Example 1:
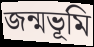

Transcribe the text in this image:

জন্মভূমি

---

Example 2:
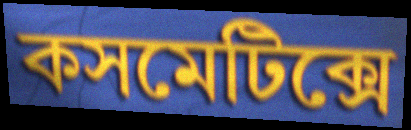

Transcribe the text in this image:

কসমেটিক্সে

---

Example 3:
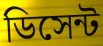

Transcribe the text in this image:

ডিসেন্ট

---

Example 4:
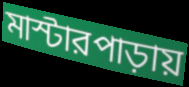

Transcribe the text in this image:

মাস্টারপাড়ায়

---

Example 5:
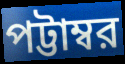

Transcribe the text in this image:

পট্টাম্বর